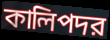
কালিপদর